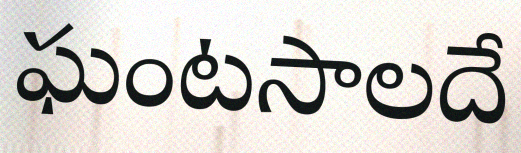
ఘంటసాలదే